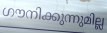
ഗൗനിക്കുന്നുമില്ല